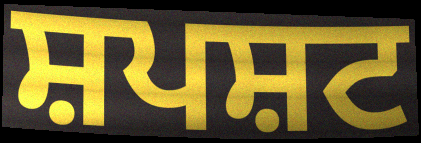
ਸ਼ਪਸ਼ਟ